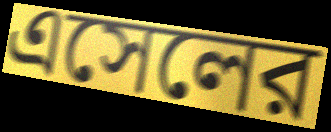
এসেলের